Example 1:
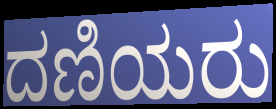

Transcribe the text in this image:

ದಣಿಯರು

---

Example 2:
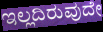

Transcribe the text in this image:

ಇಲ್ಲದಿರುವುದೇ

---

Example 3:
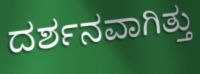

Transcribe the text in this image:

ದರ್ಶನವಾಗಿತ್ತು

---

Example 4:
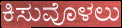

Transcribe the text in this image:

ಕಿಸುವೊಳಲು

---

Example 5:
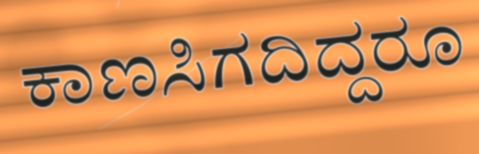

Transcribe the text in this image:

ಕಾಣಸಿಗದಿದ್ದರೂ